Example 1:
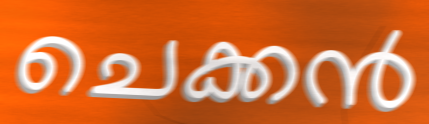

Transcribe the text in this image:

ചെക്കൻ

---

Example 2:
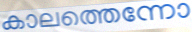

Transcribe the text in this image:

കാലത്തെന്നോ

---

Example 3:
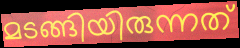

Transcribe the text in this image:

മടങ്ങിയിരുന്നത്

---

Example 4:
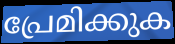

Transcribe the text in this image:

പ്രേമിക്കുക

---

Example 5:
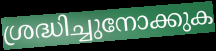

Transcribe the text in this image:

ശ്രദ്ധിച്ചുനോക്കുക